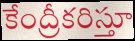
కేంద్రీకరిస్తూ